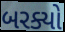
બરક્યો